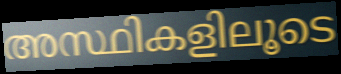
അസ്ഥികളിലൂടെ